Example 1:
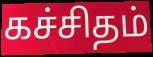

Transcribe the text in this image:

கச்சிதம்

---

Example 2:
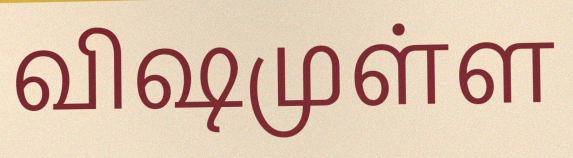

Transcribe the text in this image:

விஷமுள்ள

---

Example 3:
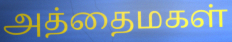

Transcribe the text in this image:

அத்தைமகள்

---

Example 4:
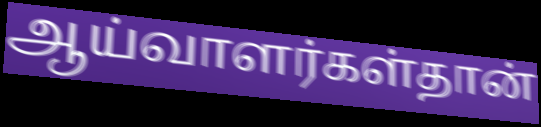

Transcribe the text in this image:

ஆய்வாளர்கள்தான்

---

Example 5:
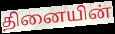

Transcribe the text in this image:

தினையின்